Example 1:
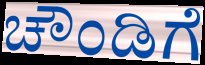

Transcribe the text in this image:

ಚೌಂಡಿಗೆ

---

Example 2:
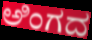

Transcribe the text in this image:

ಅಿಂಗದ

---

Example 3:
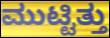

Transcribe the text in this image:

ಮುಟ್ಟಿತ್ತು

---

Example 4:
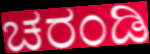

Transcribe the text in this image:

ಚರಂಡಿ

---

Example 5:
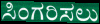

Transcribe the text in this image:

ಸಿಂಗರಿಸಲು